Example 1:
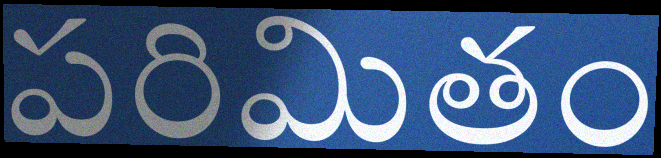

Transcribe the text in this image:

పరిమితం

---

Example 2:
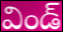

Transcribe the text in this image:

విండ్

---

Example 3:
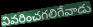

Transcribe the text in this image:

వివరించగలిగేవాడు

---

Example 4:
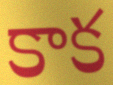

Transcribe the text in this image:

కాక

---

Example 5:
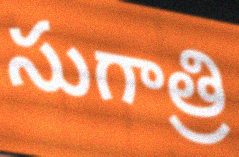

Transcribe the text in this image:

సుగాత్రి